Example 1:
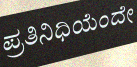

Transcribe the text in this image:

ಪ್ರತಿನಿಧಿಯೆಂದೇ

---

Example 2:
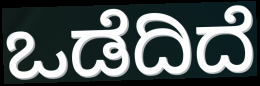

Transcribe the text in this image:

ಒಡೆದಿದೆ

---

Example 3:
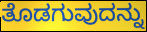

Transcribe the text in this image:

ತೊಡಗುವುದನ್ನು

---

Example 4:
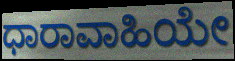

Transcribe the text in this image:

ಧಾರಾವಾಹಿಯೇ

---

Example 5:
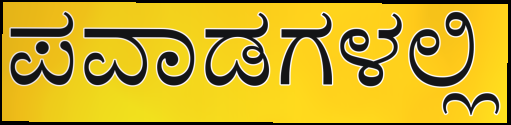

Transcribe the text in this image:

ಪವಾಡಗಳಲ್ಲಿ